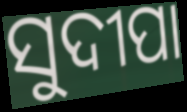
ସୁଦୀପା